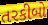
તરકીબો